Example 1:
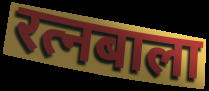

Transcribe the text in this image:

रत्नबाला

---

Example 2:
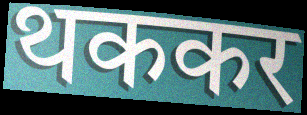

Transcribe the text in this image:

थककर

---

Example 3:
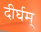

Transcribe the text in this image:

दीर्घम्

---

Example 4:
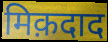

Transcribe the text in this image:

मिक़दाद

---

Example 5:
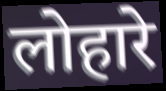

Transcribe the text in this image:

लोहारे